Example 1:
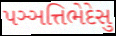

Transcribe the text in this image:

પઞ્ઞત્તિભેદેસુ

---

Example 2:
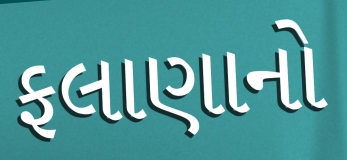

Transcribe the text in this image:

ફલાણાનો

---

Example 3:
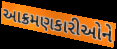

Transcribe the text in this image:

આક્રમણકારીઓને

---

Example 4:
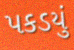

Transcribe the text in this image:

પકડયું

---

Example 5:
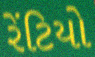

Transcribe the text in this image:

રેંટિયો